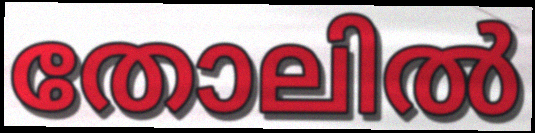
തോലിൽ